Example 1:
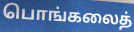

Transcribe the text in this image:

பொங்கலைத்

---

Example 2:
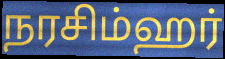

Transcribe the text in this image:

நரசிம்ஹர்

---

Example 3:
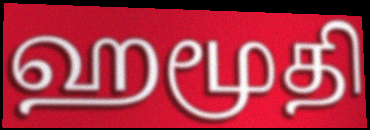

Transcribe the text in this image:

ஹமூதி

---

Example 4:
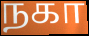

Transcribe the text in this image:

நகா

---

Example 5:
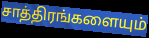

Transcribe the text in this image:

சாத்திரங்களையும்